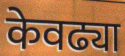
केवढ्या